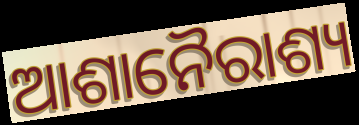
ଆଶାନୈରାଶ୍ୟ